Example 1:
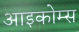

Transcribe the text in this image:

आइकोम्स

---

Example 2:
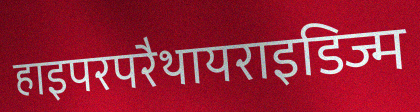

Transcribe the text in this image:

हाइपरपरैथायराइडिज्म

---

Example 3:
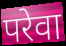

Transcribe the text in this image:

परेवा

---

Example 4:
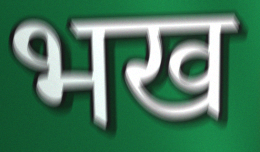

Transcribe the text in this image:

भख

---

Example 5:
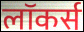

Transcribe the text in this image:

लॉकर्स